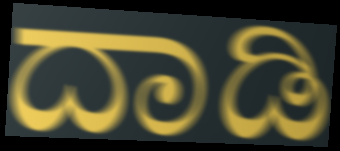
ದಾಡಿ